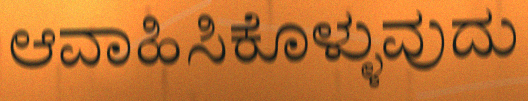
ಆವಾಹಿಸಿಕೊಳ್ಳುವುದು